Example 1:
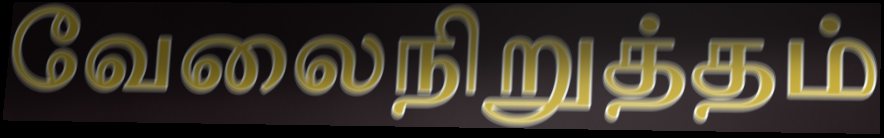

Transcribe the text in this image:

வேலைநிறுத்தம்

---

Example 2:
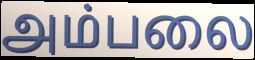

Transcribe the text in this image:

அம்பலை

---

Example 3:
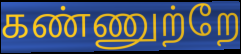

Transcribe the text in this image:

கண்ணுற்றே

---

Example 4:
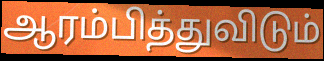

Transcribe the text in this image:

ஆரம்பித்துவிடும்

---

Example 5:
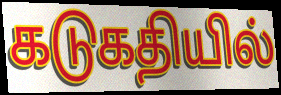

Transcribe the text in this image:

கடுகதியில்